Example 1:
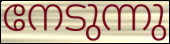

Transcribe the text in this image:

നേടുന്നു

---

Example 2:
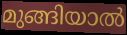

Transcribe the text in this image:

മുങ്ങിയാൽ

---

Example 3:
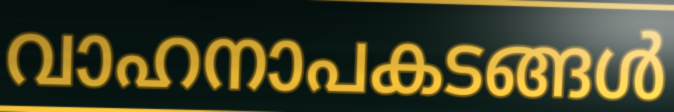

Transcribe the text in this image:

വാഹനാപകടങ്ങൾ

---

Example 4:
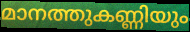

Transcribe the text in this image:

മാനത്തുകണ്ണിയും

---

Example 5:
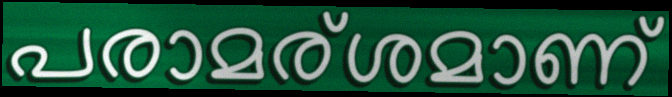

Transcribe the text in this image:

പരാമര്ശമാണ്